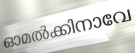
ഓമൽക്കിനാവേ